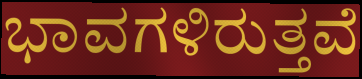
ಭಾವಗಳಿರುತ್ತವೆ